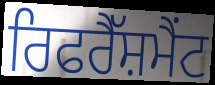
ਰਿਫਰੈੱਸ਼ਮੈਂਟ